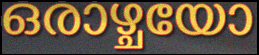
ഒരാഴ്ചയോ